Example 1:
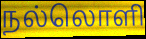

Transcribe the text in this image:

நல்லொளி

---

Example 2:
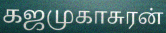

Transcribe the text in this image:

கஜமுகாசுரன்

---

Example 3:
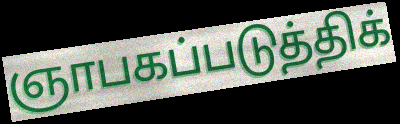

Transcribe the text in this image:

ஞாபகப்படுத்திக்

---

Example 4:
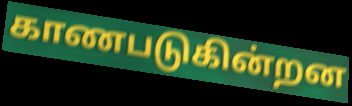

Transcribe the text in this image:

காணபடுகின்றன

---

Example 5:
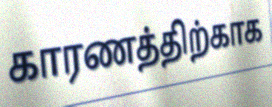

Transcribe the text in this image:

காரணத்திற்காக